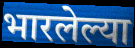
भारलेल्या